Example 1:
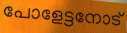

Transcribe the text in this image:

പോളേട്ടനോട്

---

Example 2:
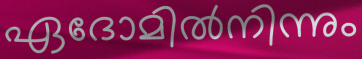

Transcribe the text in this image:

ഏദോമിൽനിന്നും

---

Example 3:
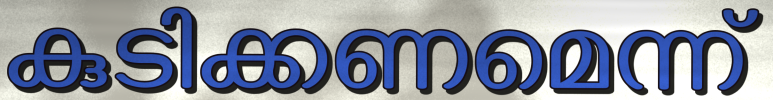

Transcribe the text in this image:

കുടിക്കണമെന്ന്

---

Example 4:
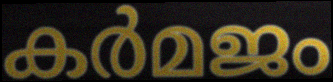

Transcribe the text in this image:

കർമജം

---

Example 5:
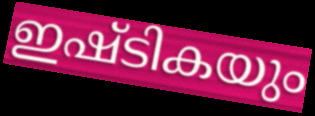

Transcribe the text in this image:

ഇഷ്ടികയും